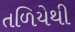
તળિયેથી